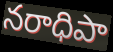
నరాధిపా